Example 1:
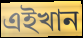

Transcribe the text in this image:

এইখান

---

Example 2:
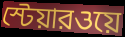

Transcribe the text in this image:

স্টেয়ারওয়ে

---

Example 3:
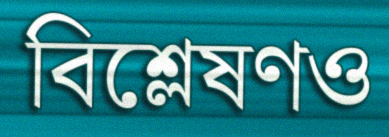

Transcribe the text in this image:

বিশ্লেষণও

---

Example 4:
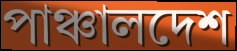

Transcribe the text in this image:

পাঞ্চালদেশ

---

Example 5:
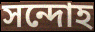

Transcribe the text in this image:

সন্দোহ